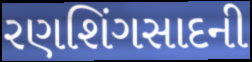
રણશિંગસાદની